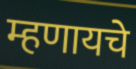
म्हणायचे